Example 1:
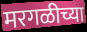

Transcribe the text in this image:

मरगळीच्या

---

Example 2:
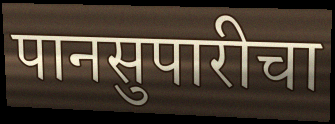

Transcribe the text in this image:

पानसुपारीचा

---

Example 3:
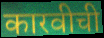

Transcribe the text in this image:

कारवीची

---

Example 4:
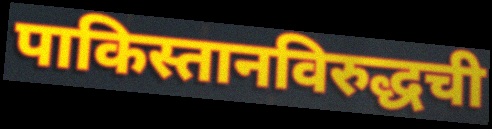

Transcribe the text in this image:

पाकिस्तानविरुद्धची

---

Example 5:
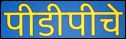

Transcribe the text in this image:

पीडीपीचे